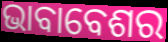
ଭାବାବେଶର